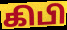
கிபி